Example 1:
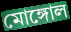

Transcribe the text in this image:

মোঙ্গোল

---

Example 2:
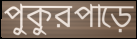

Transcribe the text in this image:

পুকুরপাড়ে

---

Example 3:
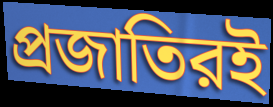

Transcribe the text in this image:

প্রজাতিরই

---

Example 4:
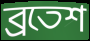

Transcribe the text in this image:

ব্রতেশ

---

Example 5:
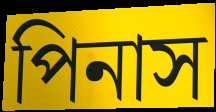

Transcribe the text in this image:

পিনাস